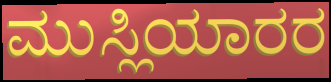
ಮುಸ್ಲಿಯಾರರ